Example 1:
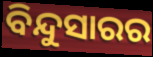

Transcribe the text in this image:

ବିନ୍ଦୁସାରର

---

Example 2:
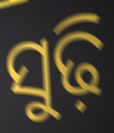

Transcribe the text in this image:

ସୁଢ଼ି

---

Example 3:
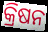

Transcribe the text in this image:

କ୍ରିଷନ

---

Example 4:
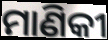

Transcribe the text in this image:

ମାଣିକୀ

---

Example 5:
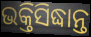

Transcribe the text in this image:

ଭକ୍ତିସିଦ୍ଧାନ୍ତ